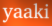
yaaki